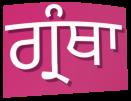
ਗ੍ਰੰਥਾ